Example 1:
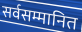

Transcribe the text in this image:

सर्वसम्मानित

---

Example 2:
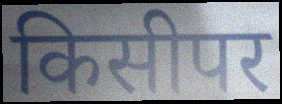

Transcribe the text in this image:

किसीपर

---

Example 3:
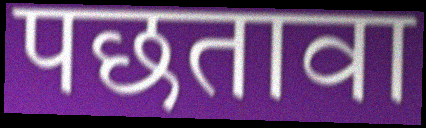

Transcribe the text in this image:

पछतावा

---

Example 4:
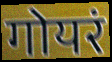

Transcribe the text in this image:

गोयरं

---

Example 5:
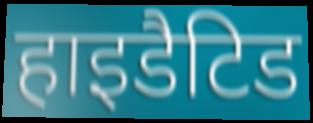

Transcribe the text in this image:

हाइडैटिड